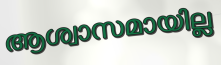
ആശ്വാസമായില്ല